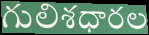
గులిశధారల